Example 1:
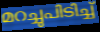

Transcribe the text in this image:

മറച്ചുപിടിച്ച്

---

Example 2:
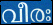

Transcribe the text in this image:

വീരഃ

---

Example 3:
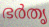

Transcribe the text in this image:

ഭർതൃ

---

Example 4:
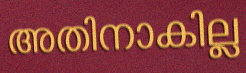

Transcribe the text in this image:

അതിനാകില്ല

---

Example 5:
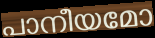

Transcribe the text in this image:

പാനീയമോ